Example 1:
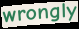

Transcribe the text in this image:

wrongly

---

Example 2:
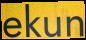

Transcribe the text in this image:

ekun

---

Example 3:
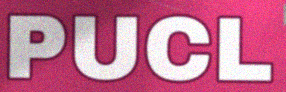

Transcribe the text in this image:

PUCL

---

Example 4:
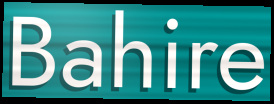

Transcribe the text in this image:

Bahire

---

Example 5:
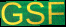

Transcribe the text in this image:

GSF